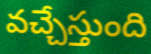
వచ్చేస్తుంది